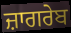
ਜ਼ਾਗਰੇਬ